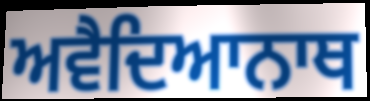
ਅਵੈਦਿਆਨਾਥ